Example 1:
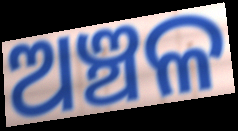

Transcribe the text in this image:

ଅଞ୍ଚଳ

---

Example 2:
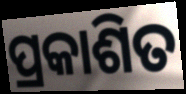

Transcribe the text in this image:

ପ୍ରକାଶିତ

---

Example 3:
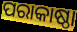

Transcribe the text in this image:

ପରାକାଷ୍ଠା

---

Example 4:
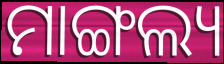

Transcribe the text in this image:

ମାଙ୍ଗଲ୍ୟ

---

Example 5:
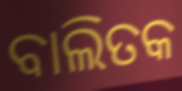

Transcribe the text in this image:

ବାଲିତକ